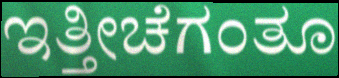
ಇತ್ತೀಚೆಗಂತೂ